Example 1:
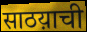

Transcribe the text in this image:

साठय़ाची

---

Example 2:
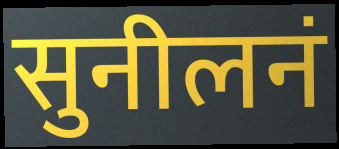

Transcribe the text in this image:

सुनीलनं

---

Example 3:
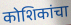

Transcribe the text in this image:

कोशिकांचा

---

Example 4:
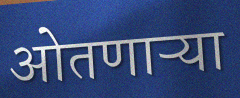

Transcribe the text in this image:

ओतणाऱ्या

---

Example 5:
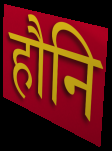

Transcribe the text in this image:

हौनि